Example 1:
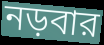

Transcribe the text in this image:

নড়বার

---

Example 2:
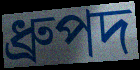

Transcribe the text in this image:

ধ্রুপদ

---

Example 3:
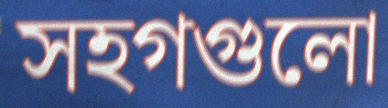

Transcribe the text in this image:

সহগগুলো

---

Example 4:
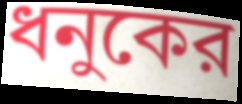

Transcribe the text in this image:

ধনুকের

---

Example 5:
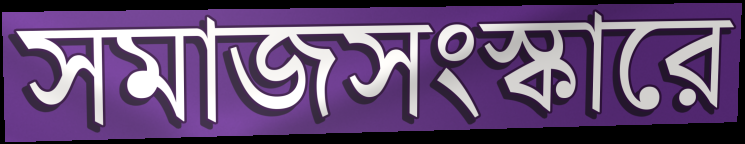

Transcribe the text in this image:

সমাজসংস্কারে